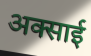
अक्साई